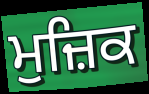
ਮੁਜ਼ਿਕ